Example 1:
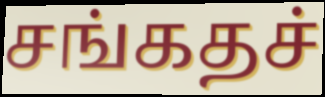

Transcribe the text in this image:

சங்கதச்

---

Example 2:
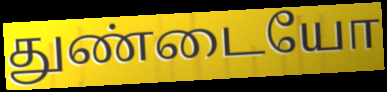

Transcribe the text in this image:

துண்டையோ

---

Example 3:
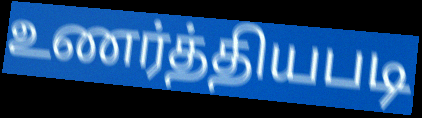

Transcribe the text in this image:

உணர்த்தியபடி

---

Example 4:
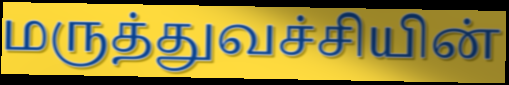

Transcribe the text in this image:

மருத்துவச்சியின்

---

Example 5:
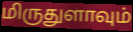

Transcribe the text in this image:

மிருதுளாவும்